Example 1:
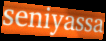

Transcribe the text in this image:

seniyassa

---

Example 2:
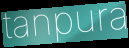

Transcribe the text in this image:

tanpura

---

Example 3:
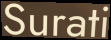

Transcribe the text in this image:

Surati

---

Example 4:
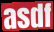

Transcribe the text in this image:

asdf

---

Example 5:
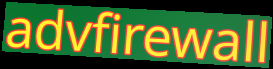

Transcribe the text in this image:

advfirewall